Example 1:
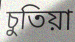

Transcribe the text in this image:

চুতিয়া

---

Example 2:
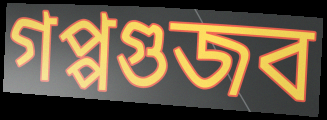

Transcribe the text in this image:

গপ্পগুজব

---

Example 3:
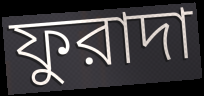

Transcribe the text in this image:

ফুরাদা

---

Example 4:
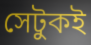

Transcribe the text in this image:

সেটুকই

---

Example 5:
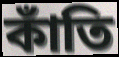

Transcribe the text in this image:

কাঁতি